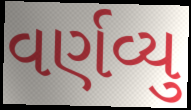
વર્ણવ્યુ